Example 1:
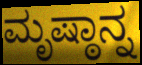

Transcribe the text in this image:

ಮೃಷ್ಠಾನ್ನ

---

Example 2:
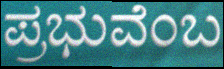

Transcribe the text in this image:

ಪ್ರಭುವೆಂಬ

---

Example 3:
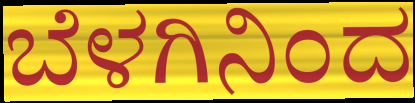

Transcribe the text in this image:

ಬೆಳಗಿನಿಂದ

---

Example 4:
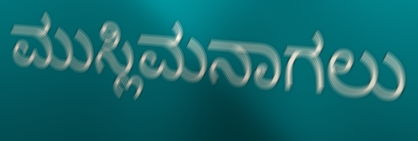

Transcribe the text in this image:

ಮುಸ್ಲಿಮನಾಗಲು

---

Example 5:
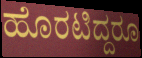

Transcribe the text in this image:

ಹೊರಟಿದ್ದರೂ